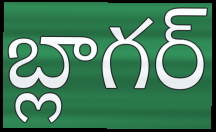
బ్లాగర్